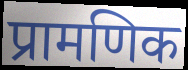
प्रामणिक